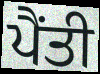
ਪੈਂਤੀ